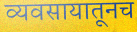
व्यवसायातूनच